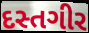
દસ્તગીર